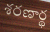
శరణార్థ